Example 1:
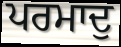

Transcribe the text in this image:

ਪਰਮਾਦੁ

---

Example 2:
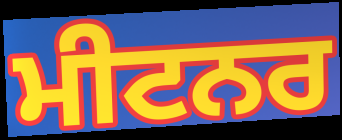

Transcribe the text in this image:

ਮੀਟਨਰ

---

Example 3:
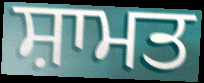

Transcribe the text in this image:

ਸ਼ਾਮਤ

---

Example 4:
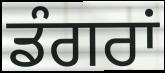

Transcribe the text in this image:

ਡੰਗਰਾਂ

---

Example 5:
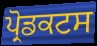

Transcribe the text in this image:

ਪ੍ਰੋਡਕਟਸ